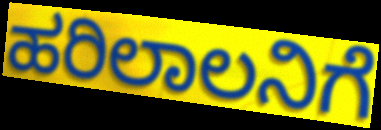
ಹರಿಲಾಲನಿಗೆ